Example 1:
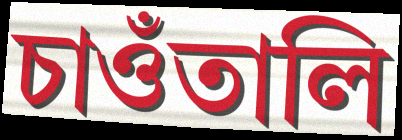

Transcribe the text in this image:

চাওঁতালি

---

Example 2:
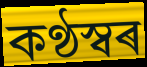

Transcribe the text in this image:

কণ্ঠস্বৰ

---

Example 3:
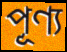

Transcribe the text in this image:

পূণ্য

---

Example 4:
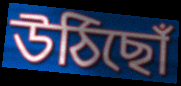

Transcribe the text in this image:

উঠিছোঁ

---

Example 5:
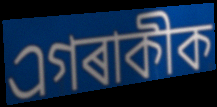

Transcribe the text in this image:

এগৰাকীক